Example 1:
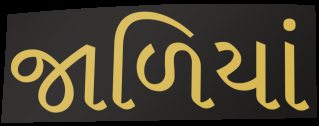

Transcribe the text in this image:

જાળિયાં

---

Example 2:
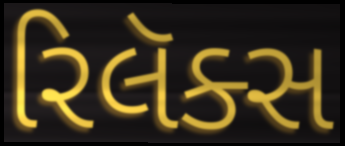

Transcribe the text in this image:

રિલૅક્સ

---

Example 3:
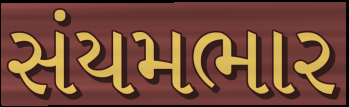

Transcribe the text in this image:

સંયમભાર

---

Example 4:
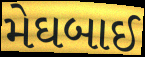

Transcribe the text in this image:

મેઘબાઈ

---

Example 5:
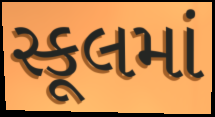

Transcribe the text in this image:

સ્કૂલમાં